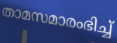
താമസമാരംഭിച്ച്